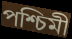
পশ্চিমী